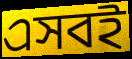
এসবই